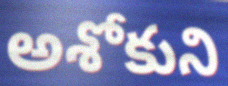
అశోకుని